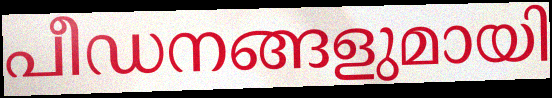
പീഡനങ്ങളുമായി